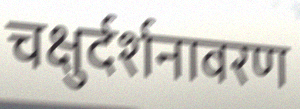
चक्षुर्दर्शनावरण